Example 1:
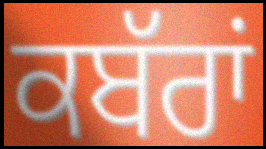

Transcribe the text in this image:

ਕਬੱਰਾਂ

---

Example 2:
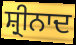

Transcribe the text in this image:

ਸ਼੍ਰੀਨਾਦ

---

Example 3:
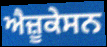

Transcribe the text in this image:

ਐਜ਼ੂਕੇਸਨ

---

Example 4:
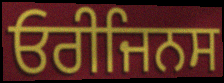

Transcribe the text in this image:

ਓਰੀਜਿਨਸ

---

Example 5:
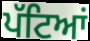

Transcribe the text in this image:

ਪੱਟਿਆਂ